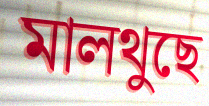
মালথুছে